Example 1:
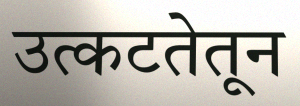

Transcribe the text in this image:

उत्कटतेतून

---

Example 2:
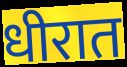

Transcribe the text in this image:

धीरात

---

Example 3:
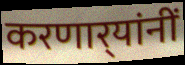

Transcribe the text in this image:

करणार्‍यांनीं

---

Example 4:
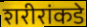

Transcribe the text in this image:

शरीरांकडे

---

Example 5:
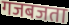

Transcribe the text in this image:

गजबजता